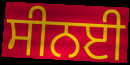
ਸੀਨਈ